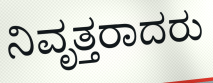
ನಿವೃತ್ತರಾದರು